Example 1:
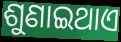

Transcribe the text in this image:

ଶୁଣାଇଥାଏ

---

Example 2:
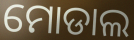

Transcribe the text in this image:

ମୋଡାଲ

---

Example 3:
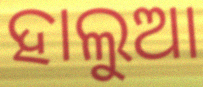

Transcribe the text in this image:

ହାଲୁଆ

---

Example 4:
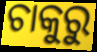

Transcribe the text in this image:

ଚାକୁରୁ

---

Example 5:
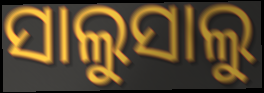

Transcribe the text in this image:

ସାଲୁସାଲୁ